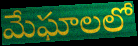
మేఘాలలో